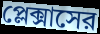
প্লেক্সাসের